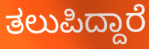
ತಲುಪಿದ್ದಾರೆ